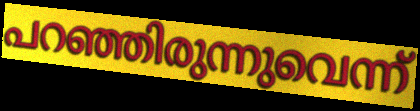
പറഞ്ഞിരുന്നുവെന്ന്